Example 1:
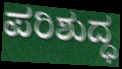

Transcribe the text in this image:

ಪರಿಶುದ್ಧ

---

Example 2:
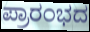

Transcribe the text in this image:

ಪ್ರಾರಂಭದ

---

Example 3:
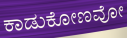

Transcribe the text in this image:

ಕಾಡುಕೋಣವೋ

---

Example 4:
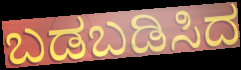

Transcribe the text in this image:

ಬಡಬಡಿಸಿದ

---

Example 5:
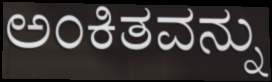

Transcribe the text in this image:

ಅಂಕಿತವನ್ನು